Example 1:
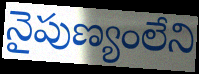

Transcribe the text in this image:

నైపుణ్యంలేని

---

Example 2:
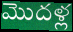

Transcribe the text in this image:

మొదళ్ల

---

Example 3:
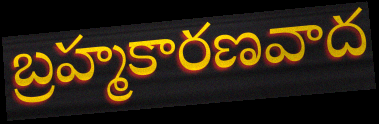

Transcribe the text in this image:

బ్రహ్మకారణవాద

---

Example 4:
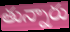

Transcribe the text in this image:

తున్నారు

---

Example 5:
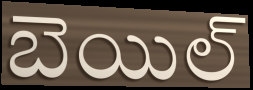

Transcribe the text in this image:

బెయిల్